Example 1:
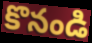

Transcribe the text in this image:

కొనండి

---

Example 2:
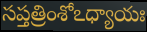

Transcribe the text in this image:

సప్తత్రింశోఽధ్యాయః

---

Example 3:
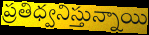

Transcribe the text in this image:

ప్రతిధ్వనిస్తున్నాయి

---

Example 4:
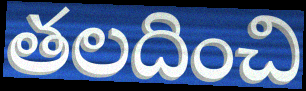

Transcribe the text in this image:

తలదించి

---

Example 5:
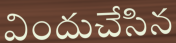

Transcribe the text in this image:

విందుచేసిన